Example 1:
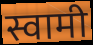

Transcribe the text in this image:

स्वामी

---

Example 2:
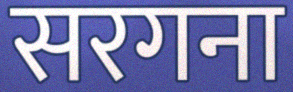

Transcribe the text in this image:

सरगना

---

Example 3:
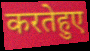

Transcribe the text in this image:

करतेहुए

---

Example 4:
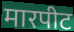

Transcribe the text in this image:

मारपीट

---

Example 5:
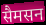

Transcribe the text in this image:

सैमसन